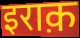
इराक़